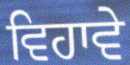
ਵਿਹਾਵੇ